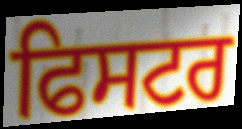
ਫਿਸਟਰ